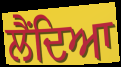
ਲੈਂਦਿਆ